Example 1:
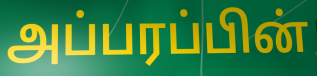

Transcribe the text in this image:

அப்பரப்பின்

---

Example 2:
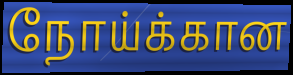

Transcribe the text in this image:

நோய்க்கான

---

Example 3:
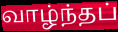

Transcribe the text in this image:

வாழ்ந்தப்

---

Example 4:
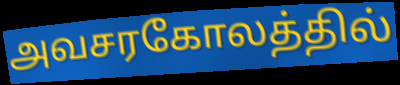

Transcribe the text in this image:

அவசரகோலத்தில்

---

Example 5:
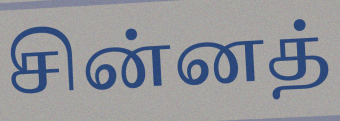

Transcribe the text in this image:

சின்னத்